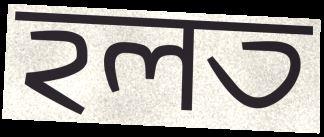
হলত